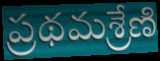
ప్రథమశ్రేణి